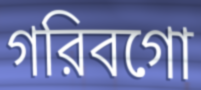
গরিবগো